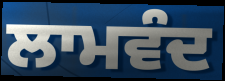
ਲਾਮਵੰਦ